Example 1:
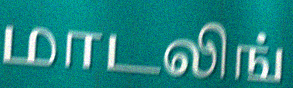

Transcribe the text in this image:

மாடலிங்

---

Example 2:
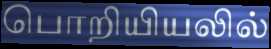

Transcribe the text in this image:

பொறியியலில்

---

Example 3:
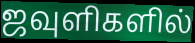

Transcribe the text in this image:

ஜவுளிகளில்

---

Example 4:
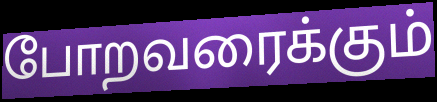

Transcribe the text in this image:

போறவரைக்கும்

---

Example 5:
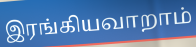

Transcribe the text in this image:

இரங்கியவாறாம்